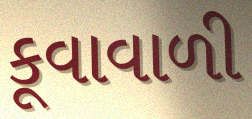
કૂવાવાળી